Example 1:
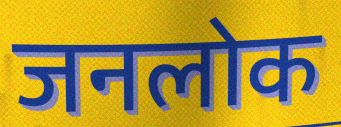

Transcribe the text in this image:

जनलोक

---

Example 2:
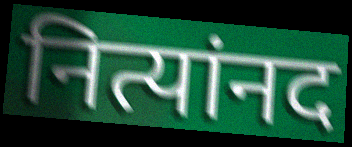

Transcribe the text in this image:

नित्यांनद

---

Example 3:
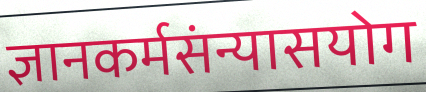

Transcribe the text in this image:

ज्ञानकर्मसंन्यासयोग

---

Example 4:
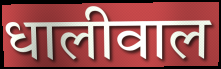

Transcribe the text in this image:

धालीवाल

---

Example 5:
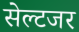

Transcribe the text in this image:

सेल्टजर